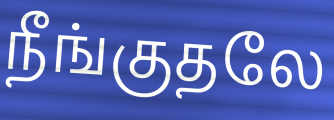
நீங்குதலே